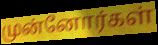
முன்னோர்கள்